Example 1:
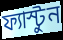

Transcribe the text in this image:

ফ্যাস্টুন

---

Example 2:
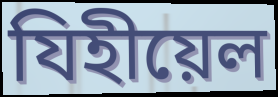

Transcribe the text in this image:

যিহীয়েল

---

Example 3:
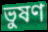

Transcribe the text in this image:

ভুষণ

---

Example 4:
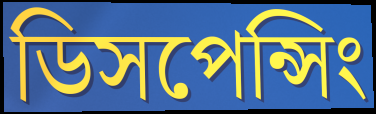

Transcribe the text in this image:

ডিসপেন্সিং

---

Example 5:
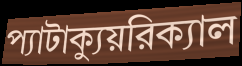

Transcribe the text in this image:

প্যাটাক্যুয়রিক্যাল